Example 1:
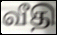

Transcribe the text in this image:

வீதி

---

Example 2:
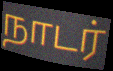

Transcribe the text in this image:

நாடர்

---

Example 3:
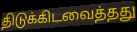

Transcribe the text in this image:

திடுக்கிடவைத்தது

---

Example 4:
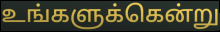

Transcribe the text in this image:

உங்களுக்கென்று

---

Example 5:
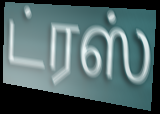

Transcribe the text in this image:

ட்ரஸ்